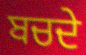
ਬਚਦੇ